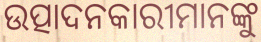
ଉତ୍ପାଦନକାରୀମାନଙ୍କୁ